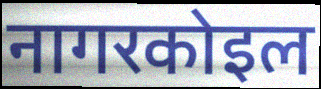
नागरकोइल